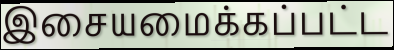
இசையமைக்கப்பட்ட